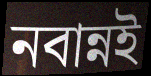
নবান্নই